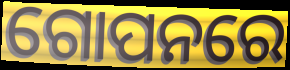
ଗୋପନରେ